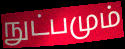
நுட்பமும்